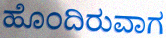
ಹೊಂದಿರುವಾಗ